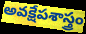
అవక్షేపశాస్త్రం